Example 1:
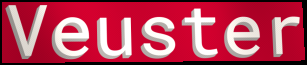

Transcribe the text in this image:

Veuster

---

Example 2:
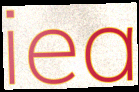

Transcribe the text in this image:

iea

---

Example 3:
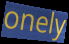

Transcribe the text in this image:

onely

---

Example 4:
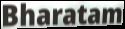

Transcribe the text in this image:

Bharatam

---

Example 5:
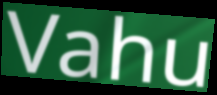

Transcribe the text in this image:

Vahu